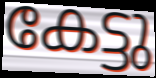
കേട്ടു